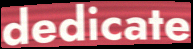
dedicate